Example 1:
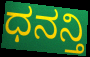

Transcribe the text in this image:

ಧನನ್ತಿ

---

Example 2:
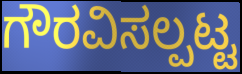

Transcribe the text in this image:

ಗೌರವಿಸಲ್ಪಟ್ಟ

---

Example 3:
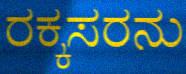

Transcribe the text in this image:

ರಕ್ಕಸರನು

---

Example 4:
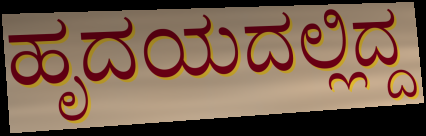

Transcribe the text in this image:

ಹೃದಯದಲ್ಲಿದ್ದ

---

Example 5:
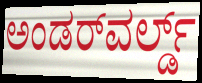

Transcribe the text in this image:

ಅಂಡರ್‌ವರ್ಲ್ಡ್